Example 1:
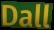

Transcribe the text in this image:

Dall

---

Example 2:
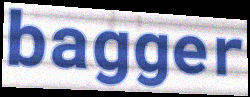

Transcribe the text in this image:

bagger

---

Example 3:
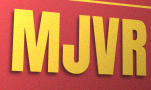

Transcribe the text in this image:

MJVR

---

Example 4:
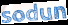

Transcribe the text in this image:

sodun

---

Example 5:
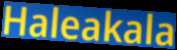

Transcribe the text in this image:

Haleakala